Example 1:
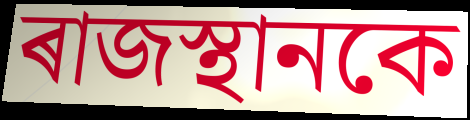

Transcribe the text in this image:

ৰাজস্থানকে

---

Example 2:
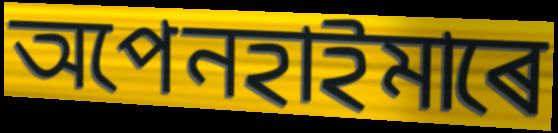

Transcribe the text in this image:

অপেনহাইমাৰে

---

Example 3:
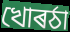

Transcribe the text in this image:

খোৰঠা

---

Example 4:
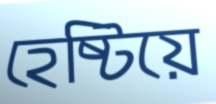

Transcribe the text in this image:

হেষ্টিয়ে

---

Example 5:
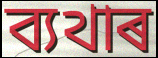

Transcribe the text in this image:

ব্যথাৰ